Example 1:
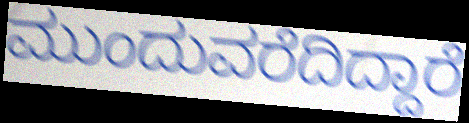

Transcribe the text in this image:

ಮುಂದುವರೆದಿದ್ದಾರೆ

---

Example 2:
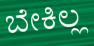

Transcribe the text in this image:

ಬೇಕಿಲ್ಲ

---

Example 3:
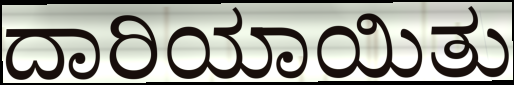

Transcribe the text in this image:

ದಾರಿಯಾಯಿತು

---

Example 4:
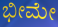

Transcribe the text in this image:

ಭೀಮೇ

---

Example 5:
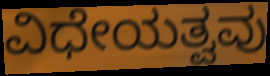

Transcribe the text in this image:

ವಿಧೇಯತ್ವವು